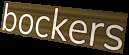
bockers